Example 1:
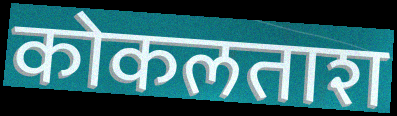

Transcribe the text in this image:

कोकलताश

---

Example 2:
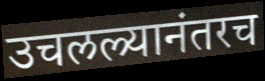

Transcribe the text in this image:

उचलल्यानंतरच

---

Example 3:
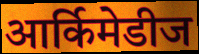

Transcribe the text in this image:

आर्किमेडीज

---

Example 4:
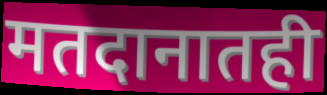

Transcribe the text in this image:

मतदानातही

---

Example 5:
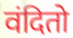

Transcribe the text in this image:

वंदितो